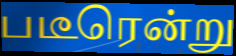
படீரென்று